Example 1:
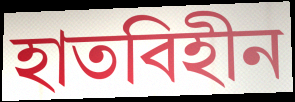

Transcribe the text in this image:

হাতবিহীন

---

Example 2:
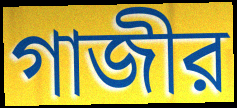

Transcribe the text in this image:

গাজীর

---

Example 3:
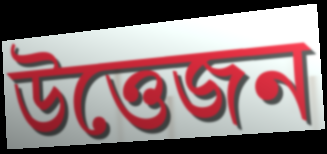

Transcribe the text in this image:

উত্তেজন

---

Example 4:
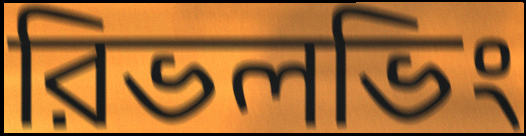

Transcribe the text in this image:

রিভলভিং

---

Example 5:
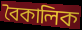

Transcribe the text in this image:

বৈকালিক